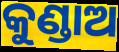
କୁଣ୍ଡାଅ